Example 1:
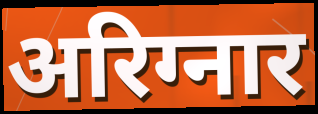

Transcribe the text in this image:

अरिग्नार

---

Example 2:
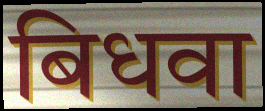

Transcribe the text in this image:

बिधवा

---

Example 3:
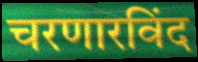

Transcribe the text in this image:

चरणारविंद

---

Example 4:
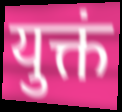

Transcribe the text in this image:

युक्तं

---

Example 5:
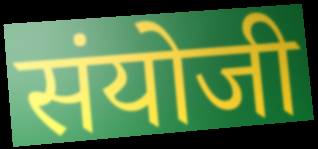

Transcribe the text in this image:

संयोजी